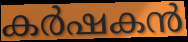
കർഷകൻ